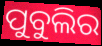
ପୁବୁଲିର